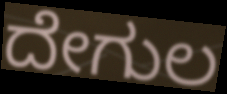
ದೇಗುಲ